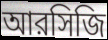
আরসিজি